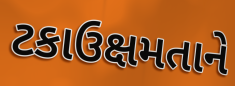
ટકાઉક્ષમતાને